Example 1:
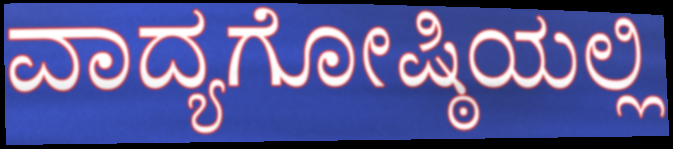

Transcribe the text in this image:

ವಾದ್ಯಗೋಷ್ಠಿಯಲ್ಲಿ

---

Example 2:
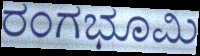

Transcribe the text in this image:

ರಂಗಭೂಮಿ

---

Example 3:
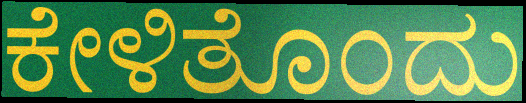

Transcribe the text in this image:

ಕೇಳಿತೊಂದು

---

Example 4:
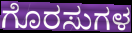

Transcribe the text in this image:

ಗೊರಸುಗಳ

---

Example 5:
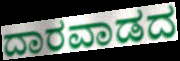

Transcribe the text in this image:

ದಾರವಾಡದ